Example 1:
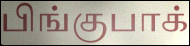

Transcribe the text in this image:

பிங்குபாக்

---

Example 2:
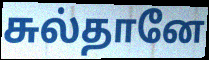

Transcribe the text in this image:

சுல்தானே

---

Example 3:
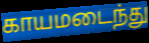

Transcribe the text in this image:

காயமடைந்து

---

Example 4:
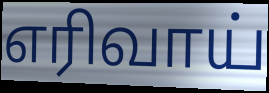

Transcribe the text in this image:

எரிவாய்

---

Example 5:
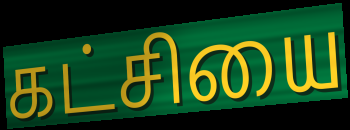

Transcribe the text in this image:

கட்சியை